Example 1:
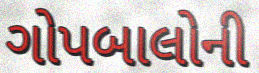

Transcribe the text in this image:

ગોપબાલોની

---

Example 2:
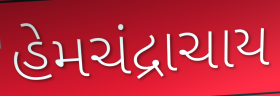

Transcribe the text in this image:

હેમચંદ્રાચાય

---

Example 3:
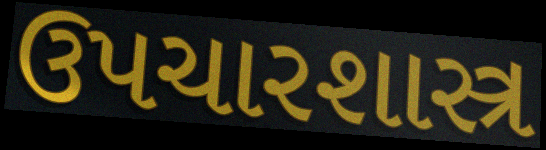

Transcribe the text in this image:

ઉપચારશાસ્ત્ર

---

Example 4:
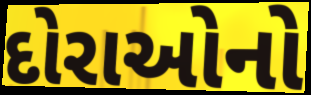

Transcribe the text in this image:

દોરાઓનો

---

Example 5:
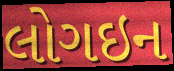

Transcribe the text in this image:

લોગઇન